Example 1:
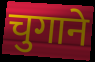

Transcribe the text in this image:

चुगाने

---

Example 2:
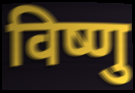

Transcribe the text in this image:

विष्णु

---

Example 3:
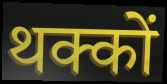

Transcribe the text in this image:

थक्कों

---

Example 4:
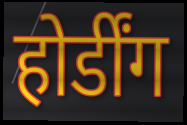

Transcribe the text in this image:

होर्डींग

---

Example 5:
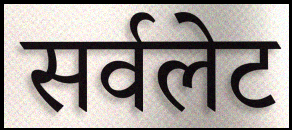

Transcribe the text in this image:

सर्वलेट